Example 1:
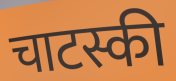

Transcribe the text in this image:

चाटस्की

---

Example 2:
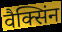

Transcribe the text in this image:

वैक्सिंन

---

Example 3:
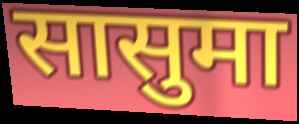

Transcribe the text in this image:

सासुमा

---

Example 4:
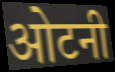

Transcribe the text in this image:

ओटनी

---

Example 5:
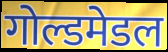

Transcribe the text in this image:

गोल्डमेडल